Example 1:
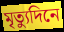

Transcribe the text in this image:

মৃত্যুদিনে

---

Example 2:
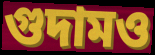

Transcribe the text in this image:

গুদামও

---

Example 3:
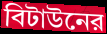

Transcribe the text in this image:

বিটাউনের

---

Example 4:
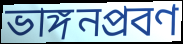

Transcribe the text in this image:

ভাঙ্গনপ্রবণ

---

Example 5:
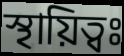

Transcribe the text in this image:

স্থায়িত্বঃ